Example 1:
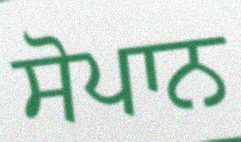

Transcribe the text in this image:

ਸੋਪਾਨ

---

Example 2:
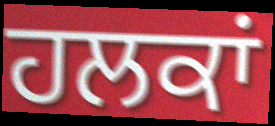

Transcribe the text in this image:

ਹਲਕਾਂ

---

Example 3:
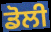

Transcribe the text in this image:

ਡੋਲੀ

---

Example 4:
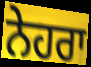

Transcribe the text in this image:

ਨੇਹਰਾ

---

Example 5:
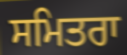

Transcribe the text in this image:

ਸਮਿਤਰਾ